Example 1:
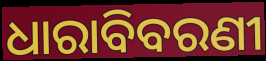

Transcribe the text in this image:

ଧାରାବିବରଣୀ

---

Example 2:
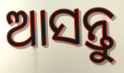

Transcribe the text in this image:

ଆସନ୍ତୁ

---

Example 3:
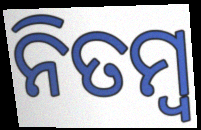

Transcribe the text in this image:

ନିତମ୍ୱ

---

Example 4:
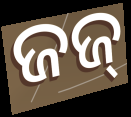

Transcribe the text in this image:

ଜଜ୍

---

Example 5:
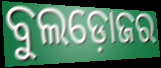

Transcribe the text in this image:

ବୁଲଡ଼ୋଜର